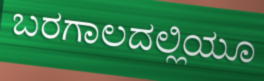
ಬರಗಾಲದಲ್ಲಿಯೂ